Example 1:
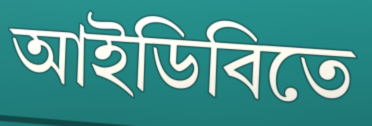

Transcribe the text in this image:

আইডিবিতে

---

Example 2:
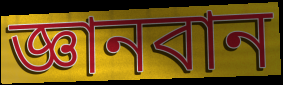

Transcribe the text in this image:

জ্ঞানবান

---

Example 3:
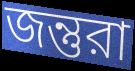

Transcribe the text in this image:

জন্তুরা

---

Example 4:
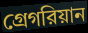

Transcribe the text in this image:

গ্রেগরিয়ান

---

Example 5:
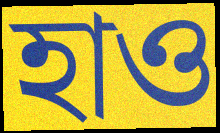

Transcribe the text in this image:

হাও